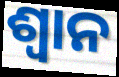
ଶ୍ୱାନ